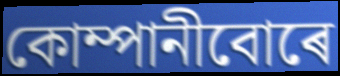
কোম্পানীবোৰে